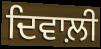
ਦਿਵਾਲ਼ੀ